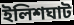
ইলিশঘাট